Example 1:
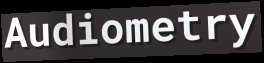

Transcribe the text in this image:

Audiometry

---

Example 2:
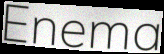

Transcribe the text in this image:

Enema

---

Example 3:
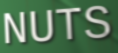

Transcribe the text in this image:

NUTS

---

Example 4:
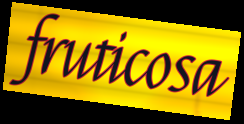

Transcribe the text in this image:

fruticosa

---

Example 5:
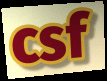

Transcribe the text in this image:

csf